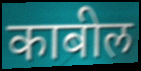
काबील